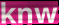
knw